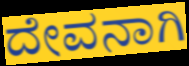
ದೇವನಾಗಿ